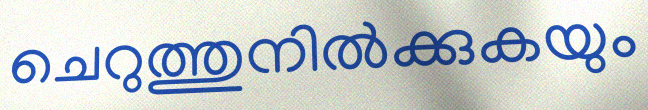
ചെറുത്തുനിൽക്കുകയും